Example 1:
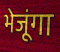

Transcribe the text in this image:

भेजूंगा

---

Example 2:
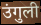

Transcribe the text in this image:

उंगुली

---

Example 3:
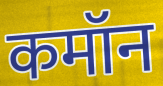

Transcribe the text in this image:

कमॉन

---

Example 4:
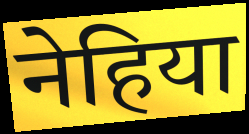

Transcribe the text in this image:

नेहिया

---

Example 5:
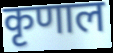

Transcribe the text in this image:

कृणाल